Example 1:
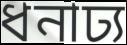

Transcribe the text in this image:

ধনাঢ্য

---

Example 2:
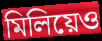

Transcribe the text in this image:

মিলিয়েও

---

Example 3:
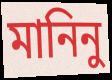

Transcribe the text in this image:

মানিনু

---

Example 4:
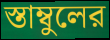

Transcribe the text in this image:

স্তাম্বুলের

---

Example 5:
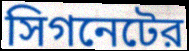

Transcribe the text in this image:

সিগনেটের